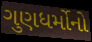
ગુણધર્મોનો